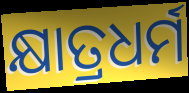
କ୍ଷାତ୍ରଧର୍ମ